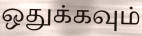
ஒதுக்கவும்